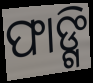
ଫାଙ୍ଗି